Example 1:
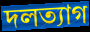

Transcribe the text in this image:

দলত্যাগ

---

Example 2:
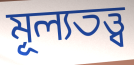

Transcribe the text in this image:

মূল্যতত্ত্ব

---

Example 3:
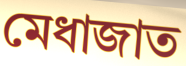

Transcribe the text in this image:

মেধাজাত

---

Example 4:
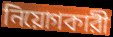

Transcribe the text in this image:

নিয়োগকারী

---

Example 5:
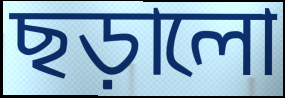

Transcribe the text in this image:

ছড়ালো